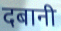
दबानी